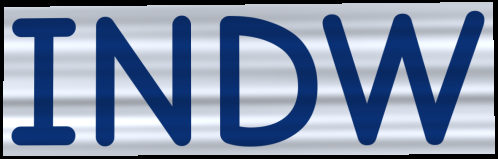
INDW